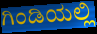
ಗಿಂಡಿಯಲ್ಲಿ